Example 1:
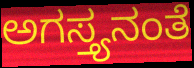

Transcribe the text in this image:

ಅಗಸ್ತ್ಯನಂತೆ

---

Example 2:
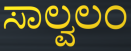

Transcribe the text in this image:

ಸಾಲ್ವಲಂ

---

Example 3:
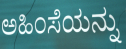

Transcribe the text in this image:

ಅಹಿಂಸೆಯನ್ನು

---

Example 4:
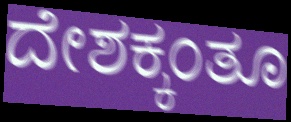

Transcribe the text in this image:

ದೇಶಕ್ಕಂತೂ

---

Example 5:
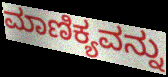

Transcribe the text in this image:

ಮಾಣಿಕ್ಯವನ್ನು